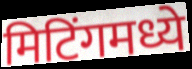
मिटिंगमध्ये